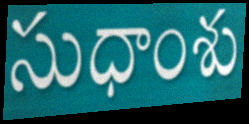
సుధాంశు